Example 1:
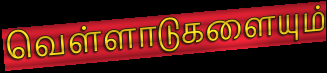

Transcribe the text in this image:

வெள்ளாடுகளையும்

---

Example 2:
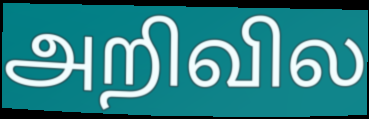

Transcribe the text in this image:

அறிவில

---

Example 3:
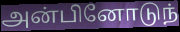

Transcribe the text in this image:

அன்பினோடுந்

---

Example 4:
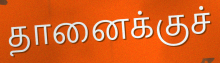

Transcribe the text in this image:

தானைக்குச்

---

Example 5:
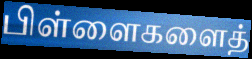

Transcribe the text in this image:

பிள்ளைகளைத்